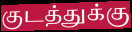
குடத்துக்கு